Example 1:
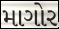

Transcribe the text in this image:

માગોર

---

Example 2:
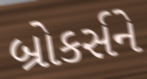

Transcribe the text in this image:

બ્રોકર્સને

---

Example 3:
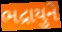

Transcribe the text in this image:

ભદ્રાયુને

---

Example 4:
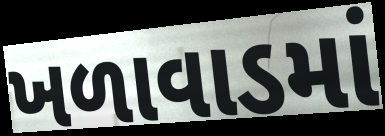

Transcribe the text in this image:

ખળાવાડમાં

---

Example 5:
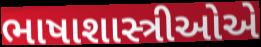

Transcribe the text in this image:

ભાષાશાસ્ત્રીઓએ